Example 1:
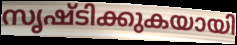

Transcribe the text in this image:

സൃഷ്ടിക്കുകയായി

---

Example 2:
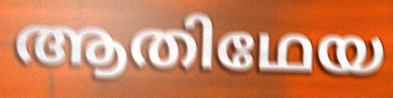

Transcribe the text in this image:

ആതിഥേയ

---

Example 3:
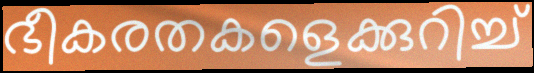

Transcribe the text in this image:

ഭീകരതകളെക്കുറിച്ച്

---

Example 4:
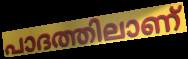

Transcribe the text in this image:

പാദത്തിലാണ്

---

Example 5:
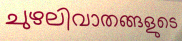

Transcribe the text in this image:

ചുഴലിവാതങ്ങളുടെ